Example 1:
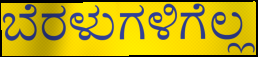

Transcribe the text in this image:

ಬೆರಳುಗಳಿಗೆಲ್ಲ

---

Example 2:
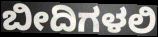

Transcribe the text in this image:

ಬೀದಿಗಳಲಿ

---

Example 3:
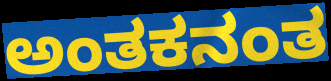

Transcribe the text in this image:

ಅಂತಕನಂತ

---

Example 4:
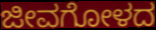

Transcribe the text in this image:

ಜೀವಗೋಳದ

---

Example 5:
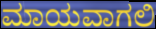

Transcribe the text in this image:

ಮಾಯವಾಗಲಿ